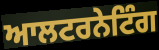
ਆਲਟਰਨੇਟਿੰਗ